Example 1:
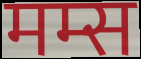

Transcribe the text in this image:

मम्स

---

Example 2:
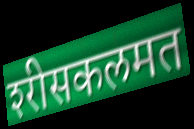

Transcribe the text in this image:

श्रीसकलमत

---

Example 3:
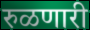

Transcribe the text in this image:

रुळणारी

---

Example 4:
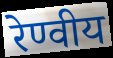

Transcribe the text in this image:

रेण्वीय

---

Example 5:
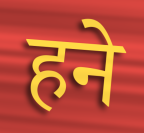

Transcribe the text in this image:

हने